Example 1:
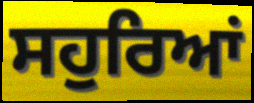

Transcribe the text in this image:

ਸਹੁਰਿਆਂ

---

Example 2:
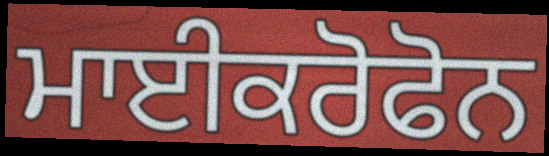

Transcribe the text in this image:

ਮਾਈਕਰੋਫੋਨ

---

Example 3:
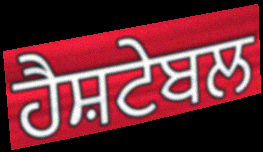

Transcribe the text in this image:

ਹੈਸ਼ਟੇਬਲ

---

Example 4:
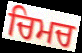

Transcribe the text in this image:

ਚਿਮਚ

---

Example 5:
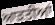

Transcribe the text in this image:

ਆੜਤੀਆਂ